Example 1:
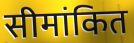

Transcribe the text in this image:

सीमांकित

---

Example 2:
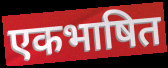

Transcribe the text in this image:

एकभाषित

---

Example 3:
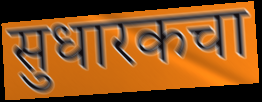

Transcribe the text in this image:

सुधारकचा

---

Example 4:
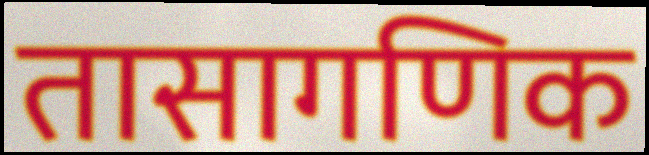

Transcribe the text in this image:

तासागणिक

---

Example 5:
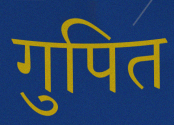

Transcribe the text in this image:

गुपित